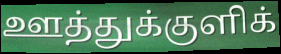
ஊத்துக்குளிக்